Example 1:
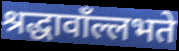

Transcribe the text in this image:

श्रद्धावाँल्लभते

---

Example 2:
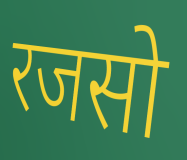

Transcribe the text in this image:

रजसो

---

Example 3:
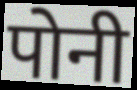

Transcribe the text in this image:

पोनी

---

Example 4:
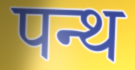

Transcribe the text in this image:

पन्थ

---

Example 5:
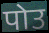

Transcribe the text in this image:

पोउ